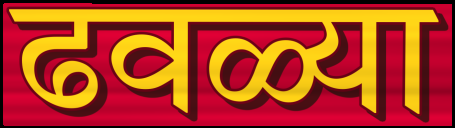
ढवळ्या